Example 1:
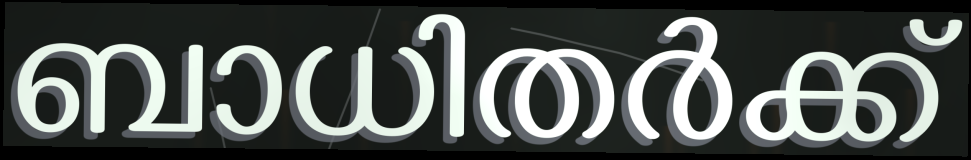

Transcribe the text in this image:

ബാധിതർക്ക്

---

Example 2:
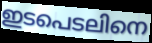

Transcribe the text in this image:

ഇടപെടലിനെ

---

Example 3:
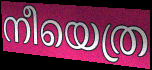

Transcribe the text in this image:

നീയെത്ര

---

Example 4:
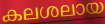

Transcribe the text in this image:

കലശലായ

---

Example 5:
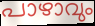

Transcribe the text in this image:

പാഴാവും